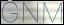
GNM